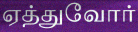
ஏத்துவோர்